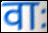
वाः